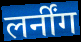
लर्नींग